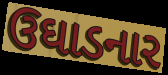
ઉઘાડનાર